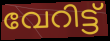
വേറിട്ട്